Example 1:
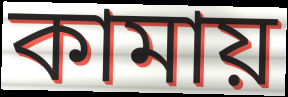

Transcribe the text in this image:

কামায়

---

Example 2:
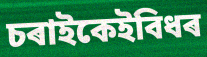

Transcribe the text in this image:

চৰাইকেইবিধৰ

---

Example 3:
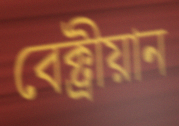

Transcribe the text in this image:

বেক্ট্ৰীয়ান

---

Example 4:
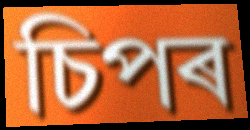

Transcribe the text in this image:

চিপৰ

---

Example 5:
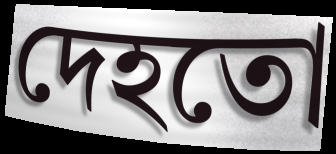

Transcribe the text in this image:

দেহতো